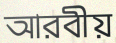
আরবীয়